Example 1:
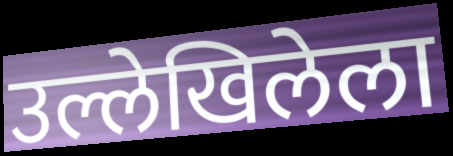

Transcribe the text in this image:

उल्लेखिलेला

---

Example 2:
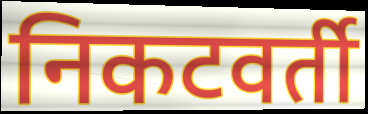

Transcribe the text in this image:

निकटवर्ती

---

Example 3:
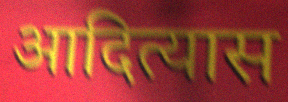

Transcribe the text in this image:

आदित्यास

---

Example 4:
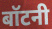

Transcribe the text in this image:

बॉटनी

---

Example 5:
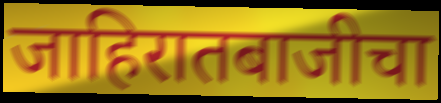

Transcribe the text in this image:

जाहिरातबाजीचा